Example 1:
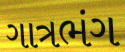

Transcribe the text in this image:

ગાત્રભંગ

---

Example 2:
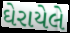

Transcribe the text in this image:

ઘેરાયેલે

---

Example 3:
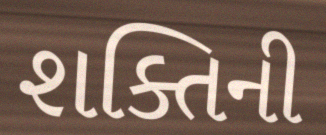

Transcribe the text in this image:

શક્તિની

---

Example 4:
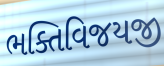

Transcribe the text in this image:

ભક્તિવિજયજી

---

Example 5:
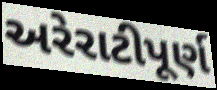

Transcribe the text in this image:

અરેરાટીપૂર્ણ